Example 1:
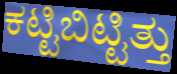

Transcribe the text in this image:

ಕಟ್ಟಿಬಿಟ್ಟಿತ್ತು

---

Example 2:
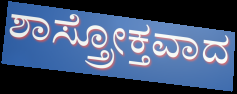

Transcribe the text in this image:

ಶಾಸ್ತ್ರೋಕ್ತವಾದ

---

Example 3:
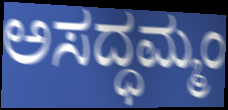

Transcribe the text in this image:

ಅಸದ್ಧಮ್ಮಂ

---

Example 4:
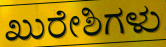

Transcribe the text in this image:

ಖುರೇಶಿಗಳು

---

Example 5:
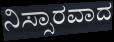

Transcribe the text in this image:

ನಿಸ್ಸಾರವಾದ